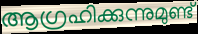
ആഗ്രഹിക്കുന്നുമുണ്ട്